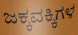
ಜಕ್ಕವಕ್ಕಿಗಳ